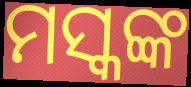
ମସ୍କଙ୍କ